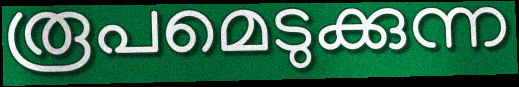
രൂപമെടുക്കുന്ന